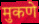
मुकणे